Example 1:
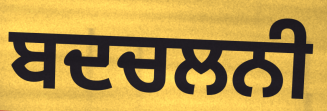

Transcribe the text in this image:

ਬਦਚਲਨੀ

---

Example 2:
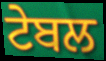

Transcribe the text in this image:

ਟੇਬਲ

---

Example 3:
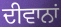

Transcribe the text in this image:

ਦੀਵਾਨਾਂ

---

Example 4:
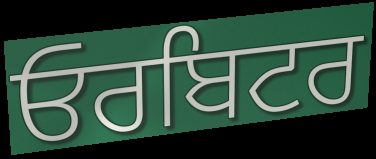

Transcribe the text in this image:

ਓਰਬਿਟਰ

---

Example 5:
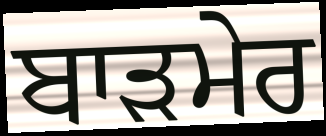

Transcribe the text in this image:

ਬਾੜਮੇਰ